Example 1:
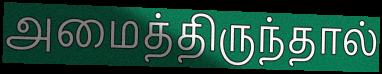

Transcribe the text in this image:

அமைத்திருந்தால்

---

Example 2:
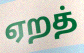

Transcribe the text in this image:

ஏறத்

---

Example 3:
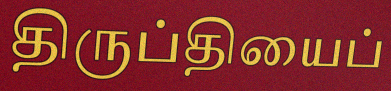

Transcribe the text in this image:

திருப்தியைப்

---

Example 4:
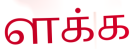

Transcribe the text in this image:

ளக்க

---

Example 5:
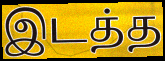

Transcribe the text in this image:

இடத்த